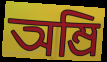
অম্রি